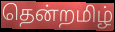
தென்றமிழ்